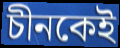
চীনকেই